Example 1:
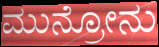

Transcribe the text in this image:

ಮುನ್ರೋನು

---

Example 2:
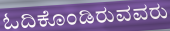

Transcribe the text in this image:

ಓದಿಕೊಂಡಿರುವವರು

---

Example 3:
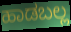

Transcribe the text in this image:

ಹಾಡಬಲ್ಲ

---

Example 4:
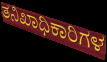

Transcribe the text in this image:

ತನಿಖಾಧಿಕಾರಿಗಳ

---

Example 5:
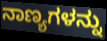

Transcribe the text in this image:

ನಾಣ್ಯಗಳನ್ನು